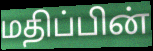
மதிப்பின்